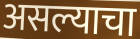
असल्‍याचा